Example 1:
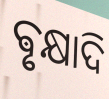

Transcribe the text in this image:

ଵୃକ୍ଷାଦି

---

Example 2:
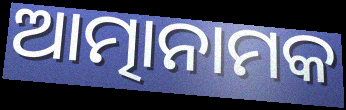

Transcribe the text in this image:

ଆତ୍ମାନାମକ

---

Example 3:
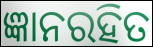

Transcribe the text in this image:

ଜ୍ଞାନରହିତ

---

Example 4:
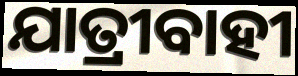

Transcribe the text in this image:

ଯାତ୍ରୀବାହୀ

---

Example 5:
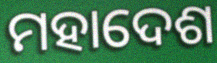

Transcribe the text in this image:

ମହାଦେଶ